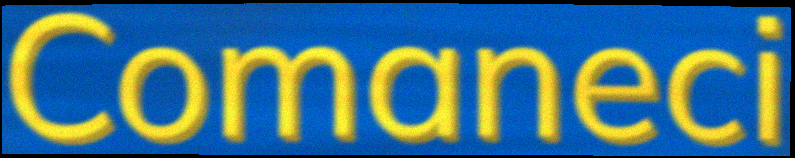
Comaneci